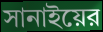
সানাইয়ের